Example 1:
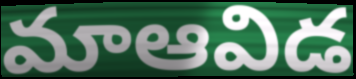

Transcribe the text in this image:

మాఆవిడ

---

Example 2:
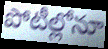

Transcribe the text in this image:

పోటీల్లోనూ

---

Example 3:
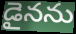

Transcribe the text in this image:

డైనను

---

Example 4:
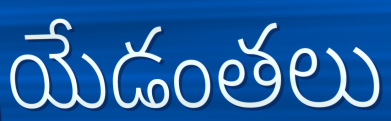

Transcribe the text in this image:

యేడంతలు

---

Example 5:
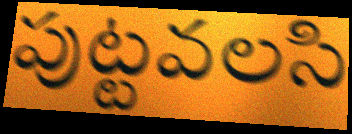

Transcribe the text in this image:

పుట్టవలసి